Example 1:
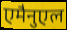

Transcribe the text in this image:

एमैनुएल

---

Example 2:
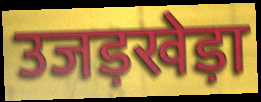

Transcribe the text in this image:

उजड़खेड़ा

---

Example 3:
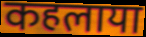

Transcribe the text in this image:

कहलाया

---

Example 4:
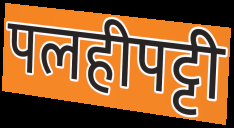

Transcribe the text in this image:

पलहीपट्टी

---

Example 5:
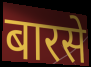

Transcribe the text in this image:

बारसे